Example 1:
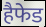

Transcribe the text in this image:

हैफेड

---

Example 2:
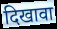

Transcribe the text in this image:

दिखावा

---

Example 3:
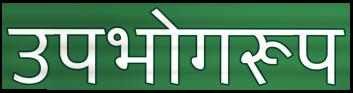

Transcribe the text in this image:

उपभोगरूप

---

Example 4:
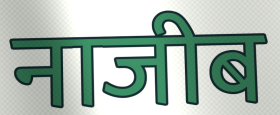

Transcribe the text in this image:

नाजीब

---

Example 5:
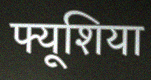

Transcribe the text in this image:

फ्यूशिया